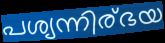
പശ്യന്നിര്ഭയ